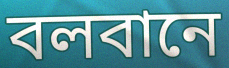
বলবানে